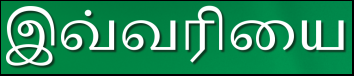
இவ்வரியை